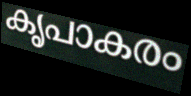
കൃപാകരം